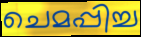
ചെമപ്പിച്ച